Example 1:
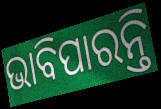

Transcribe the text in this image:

ଭାବିପାରନ୍ତି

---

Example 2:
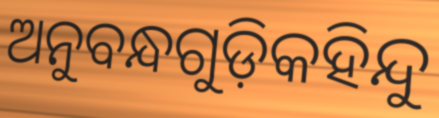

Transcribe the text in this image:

ଅନୁବନ୍ଧଗୁଡ଼ିକହିନ୍ଦୁ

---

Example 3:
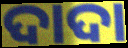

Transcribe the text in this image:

ଦାଦା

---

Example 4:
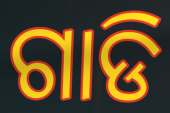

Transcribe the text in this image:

ଗାଡି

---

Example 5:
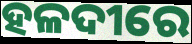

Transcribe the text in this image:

ହଳଦୀରେ